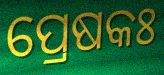
ପ୍ରେଷକଃ